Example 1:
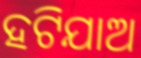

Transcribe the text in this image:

ହଟିଯାଅ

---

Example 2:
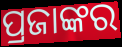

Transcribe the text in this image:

ପ୍ରଜାଙ୍କର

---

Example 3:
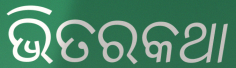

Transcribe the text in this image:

ଭିତରକଥା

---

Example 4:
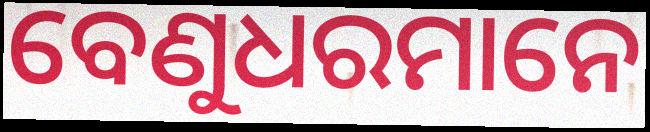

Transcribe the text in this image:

ବେଣୁଧରମାନେ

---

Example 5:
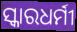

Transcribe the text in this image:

ସ୍କାରଧର୍ମୀ